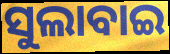
ସୁଲାବାଇ